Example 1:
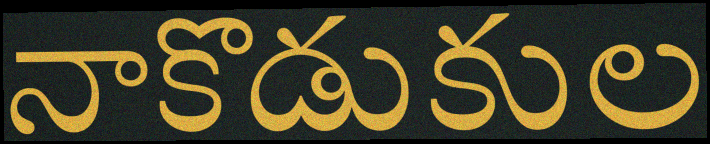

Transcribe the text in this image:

నాకొడుకుల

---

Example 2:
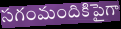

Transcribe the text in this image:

సగంమందికిపైగా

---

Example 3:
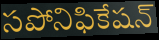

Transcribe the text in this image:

సపోనిఫికేషన్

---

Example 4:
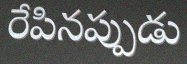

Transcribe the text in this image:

రేపినప్పుడు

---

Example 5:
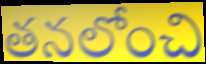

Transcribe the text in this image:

తనలోంచి